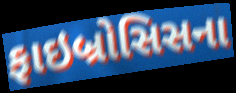
ફાઇબ્રોસિસના